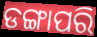
ଡଙ୍ଗାପରି